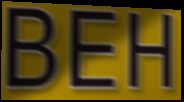
BEH